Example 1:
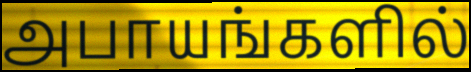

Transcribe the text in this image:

அபாயங்களில்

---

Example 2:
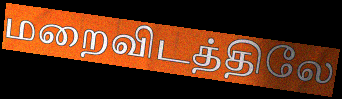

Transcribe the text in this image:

மறைவிடத்திலே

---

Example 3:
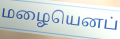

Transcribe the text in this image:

மழையெனப்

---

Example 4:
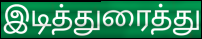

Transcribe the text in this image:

இடித்துரைத்து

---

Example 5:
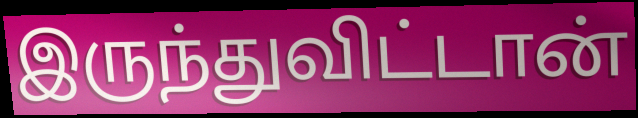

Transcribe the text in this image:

இருந்துவிட்டான்